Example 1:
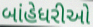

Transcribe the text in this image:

બાંહેધરીઓ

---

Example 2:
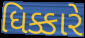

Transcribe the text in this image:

ધિક્કારે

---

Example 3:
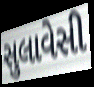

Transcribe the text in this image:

સુલાવેસી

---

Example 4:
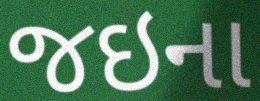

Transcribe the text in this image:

જઇના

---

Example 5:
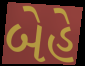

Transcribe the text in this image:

બેહે